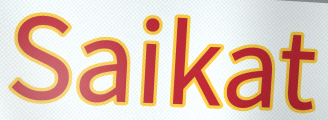
Saikat